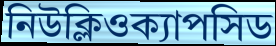
নিউক্লিওক্যাপসিড